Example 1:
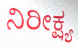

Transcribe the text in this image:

ನಿರೀಕ್ಷ್ಯ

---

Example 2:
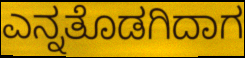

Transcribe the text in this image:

ಎನ್ನತೊಡಗಿದಾಗ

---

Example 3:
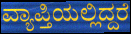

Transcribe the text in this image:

ವ್ಯಾಪ್ತಿಯಲ್ಲಿದ್ದರೆ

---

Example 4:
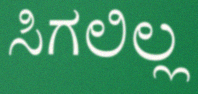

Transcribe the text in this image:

ಸಿಗಲಿಲ್ಲ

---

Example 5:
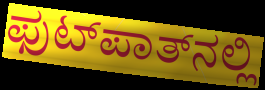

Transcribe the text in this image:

ಫುಟ್‌ಪಾತ್‌ನಲ್ಲಿ